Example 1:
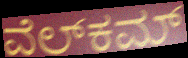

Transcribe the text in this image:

ವೆಲ್‍ಕಮ್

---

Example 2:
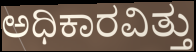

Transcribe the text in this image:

ಅಧಿಕಾರವಿತ್ತು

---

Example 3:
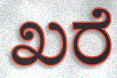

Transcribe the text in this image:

ಖರೆ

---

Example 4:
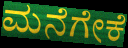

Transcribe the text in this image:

ಮನೆಗೇಕೆ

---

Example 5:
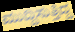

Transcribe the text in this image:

ಮುದ್ದಿಸುತ್ತಿದ್ದ